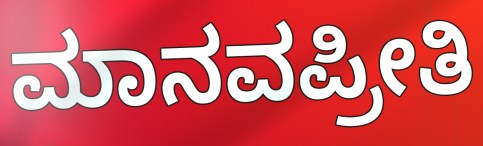
ಮಾನವಪ್ರೀತಿ